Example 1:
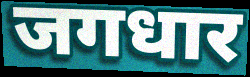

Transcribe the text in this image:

जगधार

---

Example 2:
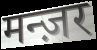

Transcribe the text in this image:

मन्ज़र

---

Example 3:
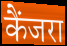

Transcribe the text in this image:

कैंजरा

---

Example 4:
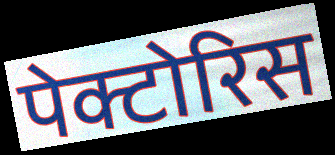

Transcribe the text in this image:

पेक्टोरिस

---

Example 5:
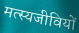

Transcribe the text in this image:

मत्स्यजीवियों